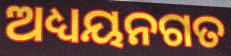
ଅଧ୍ୟୟନଗତ